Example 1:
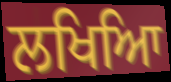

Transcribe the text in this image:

ਲਖਿਆਿ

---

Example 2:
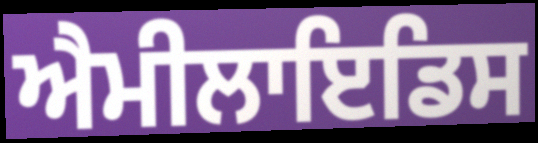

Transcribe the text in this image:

ਐਮੀਲਾਇਡਿਸ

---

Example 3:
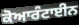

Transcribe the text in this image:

ਕੋਆਰੰਟਾਈਨ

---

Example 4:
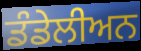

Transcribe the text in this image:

ਡੰਡੇਲੀਅਨ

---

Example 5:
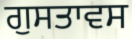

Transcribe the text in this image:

ਗੁਸਤਾਵਸ